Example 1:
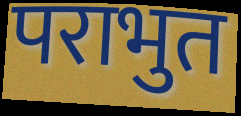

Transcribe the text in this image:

पराभुत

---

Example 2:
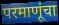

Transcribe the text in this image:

परमाणूंचा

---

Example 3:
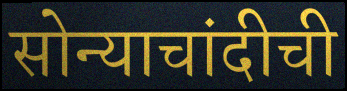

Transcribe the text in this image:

सोन्याचांदीची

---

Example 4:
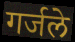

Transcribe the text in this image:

गर्जले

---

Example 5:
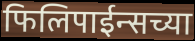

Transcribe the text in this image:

फिलिपाईन्सच्या